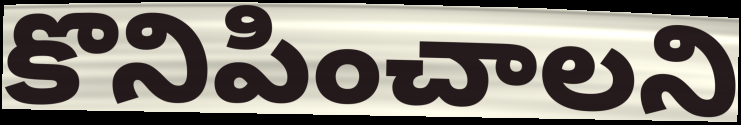
కొనిపించాలని